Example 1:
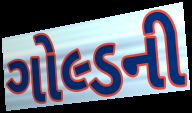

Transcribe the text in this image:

ગોલ્ડની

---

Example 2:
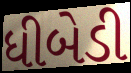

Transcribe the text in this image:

ધીબેડી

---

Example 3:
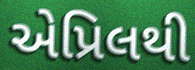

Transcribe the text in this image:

એપ્રિલથી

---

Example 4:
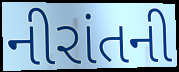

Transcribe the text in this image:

નીરાંતની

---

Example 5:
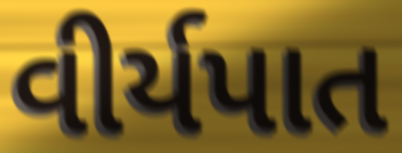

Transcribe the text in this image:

વીર્યપાત